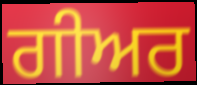
ਗੀਅਰ